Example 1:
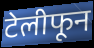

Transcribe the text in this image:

टेलीफून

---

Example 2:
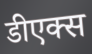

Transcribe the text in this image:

डीएक्स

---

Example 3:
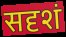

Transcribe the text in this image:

सदृशं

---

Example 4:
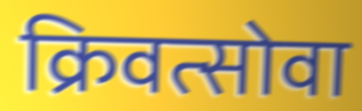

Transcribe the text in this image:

क्रिवत्सोवा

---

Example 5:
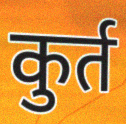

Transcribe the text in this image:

कुर्त